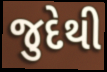
જુદેથી